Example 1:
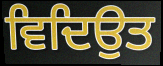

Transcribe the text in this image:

ਵਿਦਿਉਤ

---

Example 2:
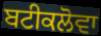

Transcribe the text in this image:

ਬਟੀਕਲੋਵਾ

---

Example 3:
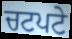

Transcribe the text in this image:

ਚਟਪਟੇ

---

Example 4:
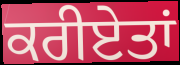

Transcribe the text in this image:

ਕਰੀਏਤਾਂ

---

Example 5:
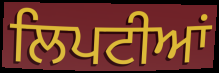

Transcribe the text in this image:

ਲਿਪਟੀਆਂ